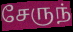
சேருந்